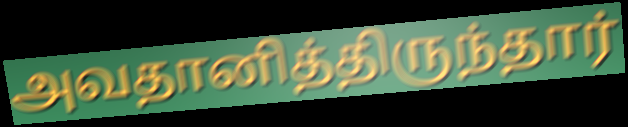
அவதானித்திருந்தார்